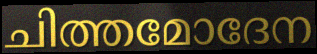
ചിത്തമോദേന